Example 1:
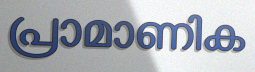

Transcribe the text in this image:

പ്രാമാണിക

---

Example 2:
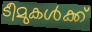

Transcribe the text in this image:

ടീമുകൾക്ക്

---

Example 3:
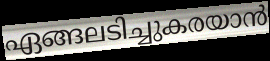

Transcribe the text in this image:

ഏങ്ങലടിച്ചുകരയാൻ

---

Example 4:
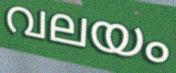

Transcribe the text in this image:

വലയം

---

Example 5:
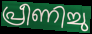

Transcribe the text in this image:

പ്രീണിച്ചു